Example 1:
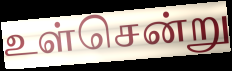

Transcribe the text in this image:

உள்சென்று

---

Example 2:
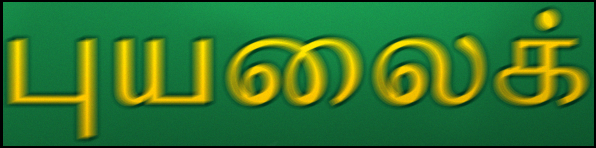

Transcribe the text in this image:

புயலைக்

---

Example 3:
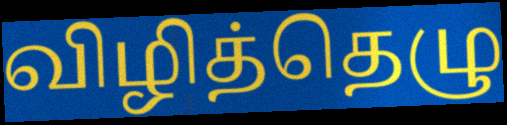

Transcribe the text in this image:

விழித்தெழு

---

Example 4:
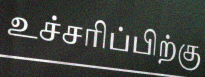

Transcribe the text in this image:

உச்சரிப்பிற்கு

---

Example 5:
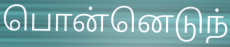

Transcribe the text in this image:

பொன்னெடுந்